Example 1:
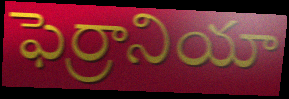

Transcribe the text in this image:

ఫెర్రానియా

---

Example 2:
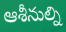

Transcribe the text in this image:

ఆశీనుల్ని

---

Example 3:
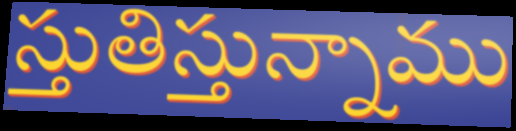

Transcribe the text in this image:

స్తుతిస్తున్నాము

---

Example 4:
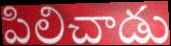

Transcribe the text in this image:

పిలిచాడు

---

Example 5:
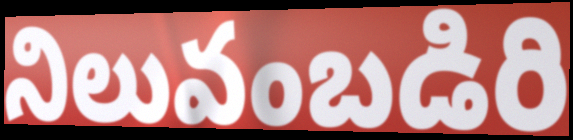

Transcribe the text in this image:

నిలువంబడిరి